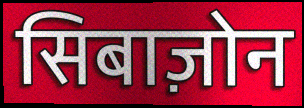
सिबाज़ोन